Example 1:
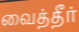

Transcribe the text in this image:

வைத்தீர்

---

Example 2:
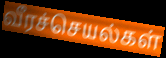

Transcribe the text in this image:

வீரச்செயல்கள்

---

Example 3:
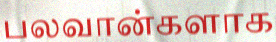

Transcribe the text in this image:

பலவான்களாக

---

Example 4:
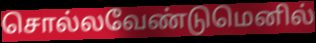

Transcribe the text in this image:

சொல்லவேண்டுமெனில்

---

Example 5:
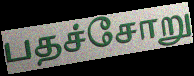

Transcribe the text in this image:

பதச்சோறு